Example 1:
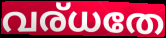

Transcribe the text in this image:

വര്ധതേ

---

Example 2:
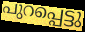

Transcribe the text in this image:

പുറപ്പെട്ടു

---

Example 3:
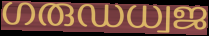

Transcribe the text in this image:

ഗരുഡധ്വജ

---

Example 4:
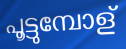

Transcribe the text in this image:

പൂട്ടുമ്പോള്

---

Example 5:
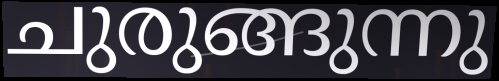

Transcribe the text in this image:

ചുരുങ്ങുന്നു